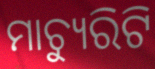
ମାଚ୍ୟୁରିଟି